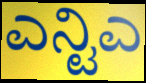
ಎನ್ಟಿಎ